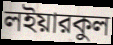
লইয়ারকুল